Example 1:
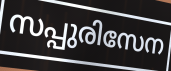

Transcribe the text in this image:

സപ്പുരിസേന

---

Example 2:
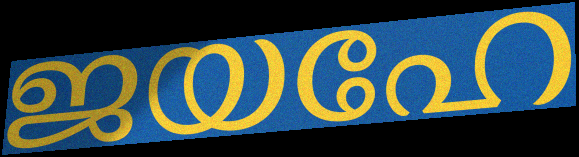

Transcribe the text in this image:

ജയഹേ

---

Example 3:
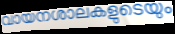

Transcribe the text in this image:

വായനശാലകളുടെയും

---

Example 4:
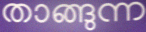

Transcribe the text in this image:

താങ്ങുന്ന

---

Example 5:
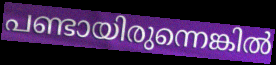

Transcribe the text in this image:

പണ്ടായിരുന്നെങ്കിൽ